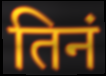
तिनं